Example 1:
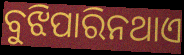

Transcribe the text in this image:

ବୁଝିପାରିନଥାଏ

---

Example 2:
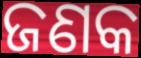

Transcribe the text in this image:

ଜଣକ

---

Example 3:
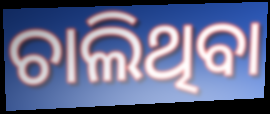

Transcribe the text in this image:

ଚାଲିଥିବା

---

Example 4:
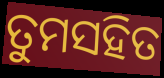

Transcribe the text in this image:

ତୁମସହିତ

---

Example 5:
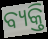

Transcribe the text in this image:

ବ୍ୟକ୍ତି